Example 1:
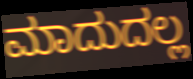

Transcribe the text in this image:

ಮಾದುದಲ್ಲ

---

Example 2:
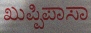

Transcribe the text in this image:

ಖುಪ್ಪಿಪಾಸಾ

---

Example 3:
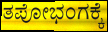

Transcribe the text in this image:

ತಪೋಭಂಗಕ್ಕೆ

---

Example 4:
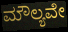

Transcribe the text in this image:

ಮೌಲ್ಯವೇ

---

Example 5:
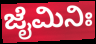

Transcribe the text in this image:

ಜೈಮಿನಿಃ